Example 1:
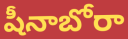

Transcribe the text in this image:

షీనాబోరా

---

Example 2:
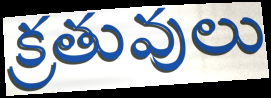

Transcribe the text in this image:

క్రతువులు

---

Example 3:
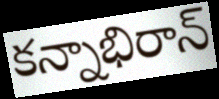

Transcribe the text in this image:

కన్నాభిరాన్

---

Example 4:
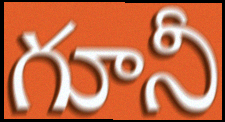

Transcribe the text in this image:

గూనీ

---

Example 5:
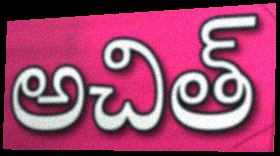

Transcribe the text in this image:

అచిత్